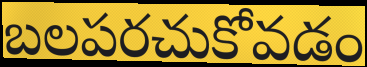
బలపరచుకోవడం